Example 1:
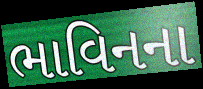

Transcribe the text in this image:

ભાવિનના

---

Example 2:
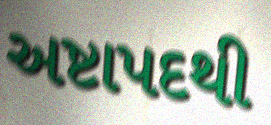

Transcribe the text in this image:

અષ્ટાપદથી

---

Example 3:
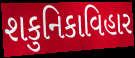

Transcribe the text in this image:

શકુનિકાવિહાર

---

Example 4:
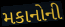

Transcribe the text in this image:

મકાનોની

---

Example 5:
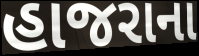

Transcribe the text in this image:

હાજરાના